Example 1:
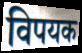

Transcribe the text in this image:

विपयक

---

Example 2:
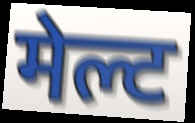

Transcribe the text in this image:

मेल्ट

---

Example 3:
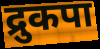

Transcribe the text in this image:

द्रुकपा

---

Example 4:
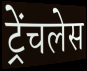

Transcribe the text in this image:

ट्रेंचलेस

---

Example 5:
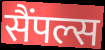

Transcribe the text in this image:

सैंपल्‍स